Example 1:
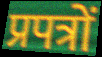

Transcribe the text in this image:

प्रपत्रों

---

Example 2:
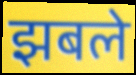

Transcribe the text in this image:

झबले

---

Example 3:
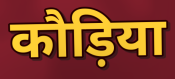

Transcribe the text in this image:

कौड़िया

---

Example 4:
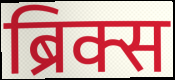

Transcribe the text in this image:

ब्रिक्स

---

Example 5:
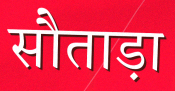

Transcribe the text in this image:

सौताड़ा